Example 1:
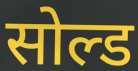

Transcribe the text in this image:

सोल्ड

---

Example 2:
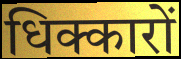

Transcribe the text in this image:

धिक्कारों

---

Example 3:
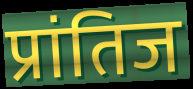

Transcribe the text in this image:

प्रांतिज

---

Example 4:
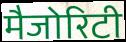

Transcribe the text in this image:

मैजोरिटी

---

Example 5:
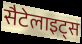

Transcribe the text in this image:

सैटेलाइट्स